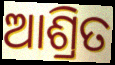
ଆଶ୍ରିତ